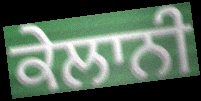
ਕੇਲਾਨੀ